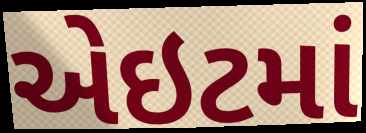
એઇટમાં